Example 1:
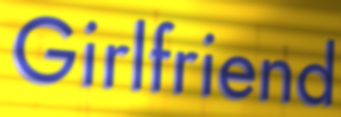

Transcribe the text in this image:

Girlfriend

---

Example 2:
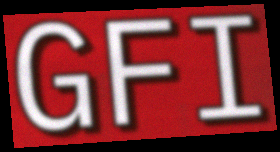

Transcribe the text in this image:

GFI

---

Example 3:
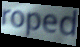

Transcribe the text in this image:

roped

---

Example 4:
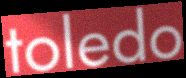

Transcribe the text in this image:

toledo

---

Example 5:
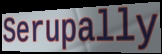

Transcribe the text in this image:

Serupally